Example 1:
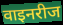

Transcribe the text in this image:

वाइनरीज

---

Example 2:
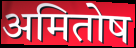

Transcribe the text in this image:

अमितोष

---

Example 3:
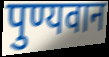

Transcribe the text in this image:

पुण्यवान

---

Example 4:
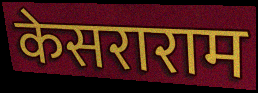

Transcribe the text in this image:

केसराराम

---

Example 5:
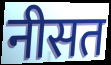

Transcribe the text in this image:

नीसत